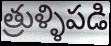
త్రుళ్ళిపడి